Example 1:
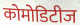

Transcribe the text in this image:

कोमोडिटीज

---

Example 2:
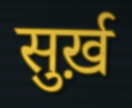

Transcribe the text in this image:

सुर्ख़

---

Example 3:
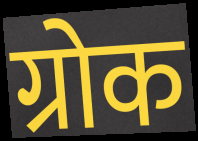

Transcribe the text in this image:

ग्रोक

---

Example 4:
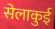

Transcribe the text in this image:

सेलाकुई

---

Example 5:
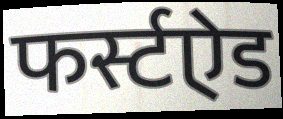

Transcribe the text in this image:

फर्स्टऐड